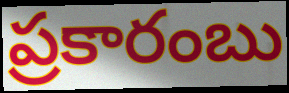
ప్రకారంబు